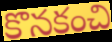
కొనకంచి